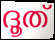
ദൂത്